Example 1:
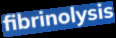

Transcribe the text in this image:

fibrinolysis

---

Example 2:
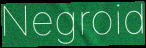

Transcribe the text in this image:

Negroid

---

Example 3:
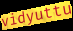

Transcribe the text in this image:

vidyuttu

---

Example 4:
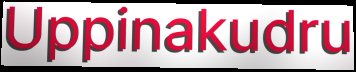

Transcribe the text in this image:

Uppinakudru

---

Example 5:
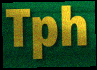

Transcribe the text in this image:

Tph